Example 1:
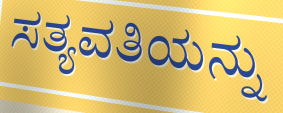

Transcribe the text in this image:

ಸತ್ಯವತಿಯನ್ನು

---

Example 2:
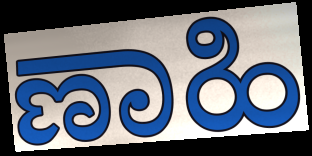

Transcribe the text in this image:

ಣಾಹಿ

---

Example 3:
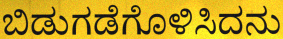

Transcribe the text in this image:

ಬಿಡುಗಡೆಗೊಳಿಸಿದನು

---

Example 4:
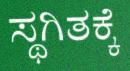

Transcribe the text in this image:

ಸ್ಥಗಿತಕ್ಕೆ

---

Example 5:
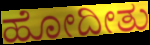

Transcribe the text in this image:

ಹೋದೀತು